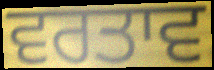
ਵਰਤਾਵ